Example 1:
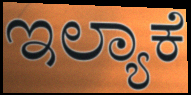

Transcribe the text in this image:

ಇಲ್ಯಾಕೆ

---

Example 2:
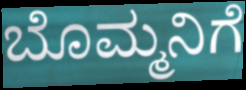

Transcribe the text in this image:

ಬೊಮ್ಮನಿಗೆ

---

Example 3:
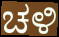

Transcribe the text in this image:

ಚಳಿ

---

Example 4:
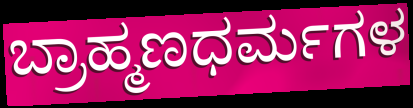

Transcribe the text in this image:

ಬ್ರಾಹ್ಮಣಧರ್ಮಗಳ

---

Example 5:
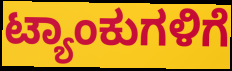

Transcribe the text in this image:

ಟ್ಯಾಂಕುಗಳಿಗೆ